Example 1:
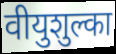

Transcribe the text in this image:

वीयुशुल्का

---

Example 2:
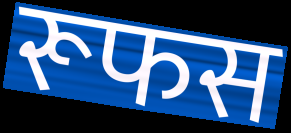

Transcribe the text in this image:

रूफस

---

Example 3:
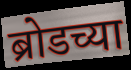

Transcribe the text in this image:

ब्रोडच्या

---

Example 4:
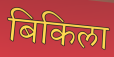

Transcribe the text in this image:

बिकिला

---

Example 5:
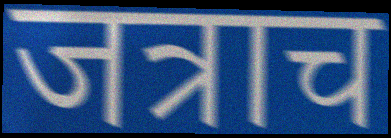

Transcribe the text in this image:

जत्राच